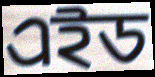
এইড